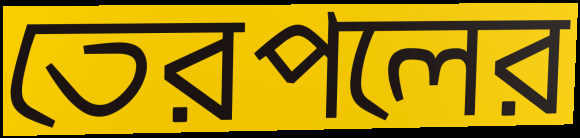
তেরপলের